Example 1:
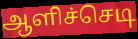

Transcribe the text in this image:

ஆளிச்செடி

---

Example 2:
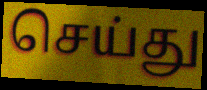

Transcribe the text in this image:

செய்து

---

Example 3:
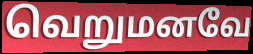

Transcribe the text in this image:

வெறுமனவே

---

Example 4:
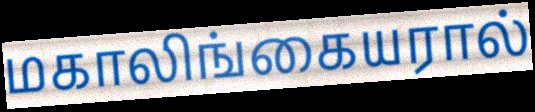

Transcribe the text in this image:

மகாலிங்கையரால்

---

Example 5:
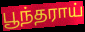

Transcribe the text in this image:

பூந்தராய்